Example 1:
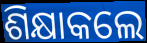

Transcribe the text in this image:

ଶିକ୍ଷାକଲେ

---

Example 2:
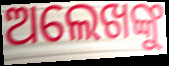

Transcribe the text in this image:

ଅଲେଖଙ୍କୁ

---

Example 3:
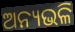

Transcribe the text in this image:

ଅନ୍ୟଭଳି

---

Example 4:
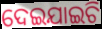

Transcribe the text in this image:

ଦେଇଯାଇଚି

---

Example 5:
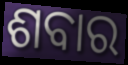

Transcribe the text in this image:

ଶବାର